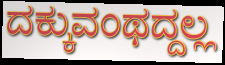
ದಕ್ಕುವಂಥದ್ದಲ್ಲ